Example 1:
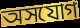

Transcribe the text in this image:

অসযোগ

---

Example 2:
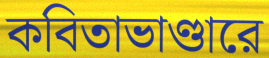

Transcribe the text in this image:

কবিতাভাণ্ডারে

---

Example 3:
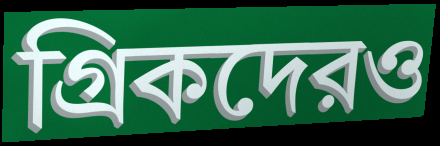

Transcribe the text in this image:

গ্রিকদেরও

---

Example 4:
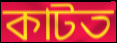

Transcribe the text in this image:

কাটত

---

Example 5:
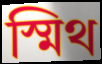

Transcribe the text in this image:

স্মিথ